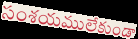
సంశయములేకుండా